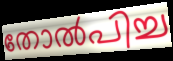
തോൽപിച്ച